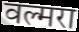
वल्मरा